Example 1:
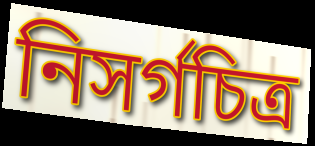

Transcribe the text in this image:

নিসর্গচিত্র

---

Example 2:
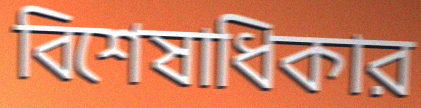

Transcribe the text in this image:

বিশেষাধিকার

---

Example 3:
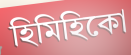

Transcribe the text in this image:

হিমিহিকো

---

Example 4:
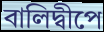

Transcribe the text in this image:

বালিদ্বীপে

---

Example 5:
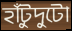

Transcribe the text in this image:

হাঁটুদুটো